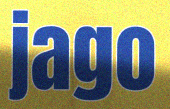
jago